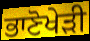
ਭਾਣੋਖੇੜੀ